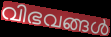
വിഭവങ്ങൾ